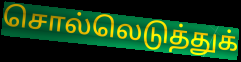
சொல்லெடுத்துக்